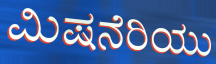
ಮಿಷನೆರಿಯು